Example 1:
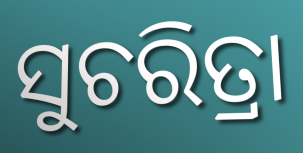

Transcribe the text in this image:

ସୁଚରିତ୍ରା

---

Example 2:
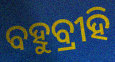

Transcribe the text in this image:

ବହୁବ୍ରୀହି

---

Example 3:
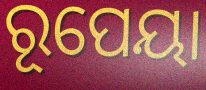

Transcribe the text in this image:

ରୂପେୟା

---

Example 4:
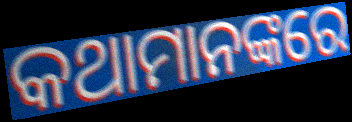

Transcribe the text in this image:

କଥାମାନଙ୍କରେ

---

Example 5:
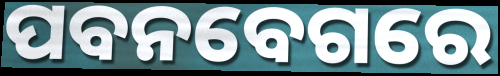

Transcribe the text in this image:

ପବନବେଗରେ